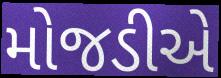
મોજડીએ